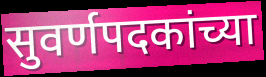
सुवर्णपदकांच्या